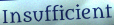
Insufficient